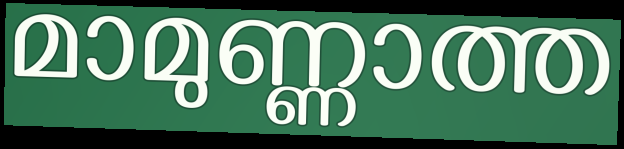
മാമുണ്ണാത്ത